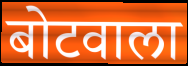
बोटवाला